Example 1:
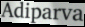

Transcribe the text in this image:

Adiparva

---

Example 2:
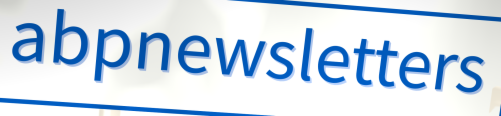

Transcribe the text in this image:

abpnewsletters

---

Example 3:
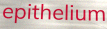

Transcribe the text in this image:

epithelium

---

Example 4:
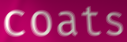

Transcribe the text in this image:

coats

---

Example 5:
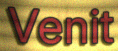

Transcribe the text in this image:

Venit